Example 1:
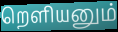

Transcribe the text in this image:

றெளியனும்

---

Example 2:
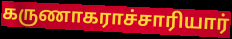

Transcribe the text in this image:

கருணாகராச்சாரியார்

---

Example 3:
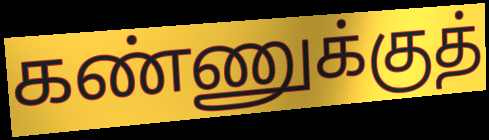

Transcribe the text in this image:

கண்ணுக்குத்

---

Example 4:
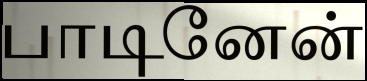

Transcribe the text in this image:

பாடினேன்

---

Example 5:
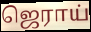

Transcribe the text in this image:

ஜெராய்